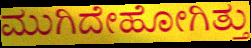
ಮುಗಿದೇಹೋಗಿತ್ತು